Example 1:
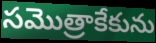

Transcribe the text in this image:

సమొత్రాకేకును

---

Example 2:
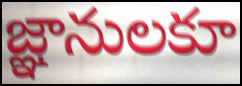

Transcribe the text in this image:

జ్ఞానులకూ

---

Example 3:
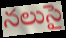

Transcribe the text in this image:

నలుసై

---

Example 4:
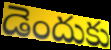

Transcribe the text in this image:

డెందుకు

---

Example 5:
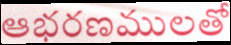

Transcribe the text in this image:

ఆభరణములతో